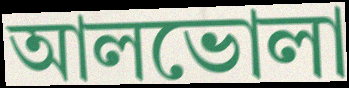
আলভোলা